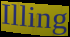
Illing